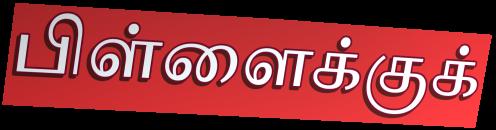
பிள்ளைக்குக்